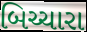
બિચ્ચારા